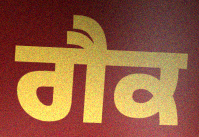
ਗੈਕ